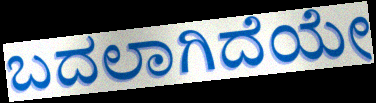
ಬದಲಾಗಿದೆಯೇ